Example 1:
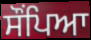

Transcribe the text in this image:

ਸੌਂਪਿਆ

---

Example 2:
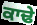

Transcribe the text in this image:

ਕਾਢੇ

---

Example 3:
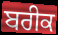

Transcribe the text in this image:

ਬਰੀਕ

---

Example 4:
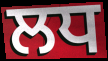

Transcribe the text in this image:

ਲਧ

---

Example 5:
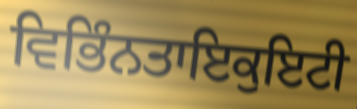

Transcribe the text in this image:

ਵਿਭਿੰਨਤਾਇਕੁਇਟੀ